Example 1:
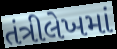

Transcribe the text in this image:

તંત્રીલેખમાં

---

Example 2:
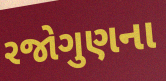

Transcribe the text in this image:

રજોગુણના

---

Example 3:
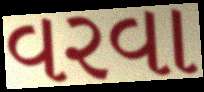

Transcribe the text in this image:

વરવા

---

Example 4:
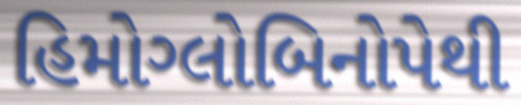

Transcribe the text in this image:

હિમોગ્લોબિનોપેથી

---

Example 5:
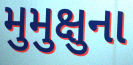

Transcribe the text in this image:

મુમુક્ષુના